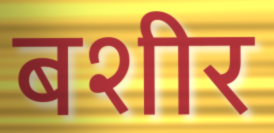
बशीर